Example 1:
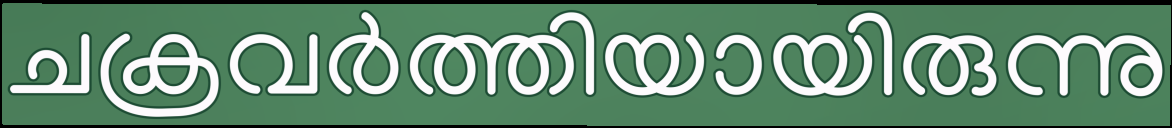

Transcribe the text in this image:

ചക്രവർത്തിയായിരുന്നു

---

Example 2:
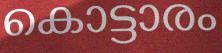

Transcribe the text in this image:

കൊട്ടാരം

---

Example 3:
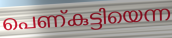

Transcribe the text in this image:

പെണ്കുട്ടിയെന്ന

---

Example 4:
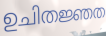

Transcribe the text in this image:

ഉചിതജ്ഞത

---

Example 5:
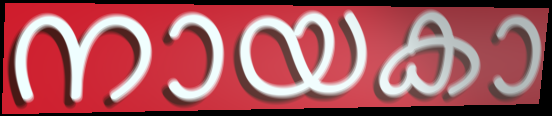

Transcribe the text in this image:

നായകാ